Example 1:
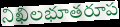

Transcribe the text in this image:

నిఖిలభూతరూప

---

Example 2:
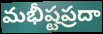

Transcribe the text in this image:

మభీష్టప్రదా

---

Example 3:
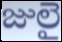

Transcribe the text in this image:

జులై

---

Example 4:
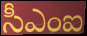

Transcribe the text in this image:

సీఎంఐ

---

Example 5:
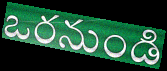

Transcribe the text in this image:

ఒరనుండి